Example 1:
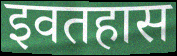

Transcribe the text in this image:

इवतहास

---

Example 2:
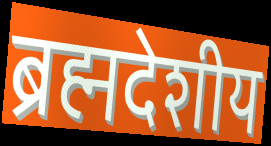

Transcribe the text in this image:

ब्रह्मदेशीय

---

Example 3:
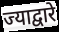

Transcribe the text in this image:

ज्याद्वारे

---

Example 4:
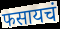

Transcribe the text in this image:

फसायचं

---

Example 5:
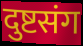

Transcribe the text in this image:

दुष्टसंग